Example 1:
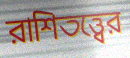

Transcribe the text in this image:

রাশিতত্ত্বের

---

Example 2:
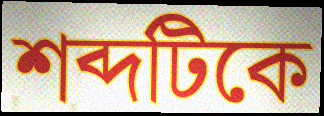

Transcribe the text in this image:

শব্দটিকে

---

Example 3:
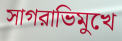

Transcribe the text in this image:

সাগরাভিমুখে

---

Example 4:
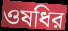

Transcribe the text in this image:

ওষধির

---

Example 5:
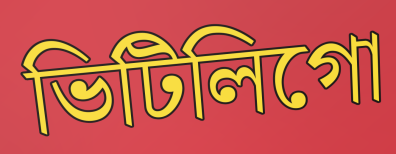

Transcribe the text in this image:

ভিটিলিগো